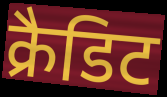
क्रैडिट